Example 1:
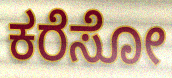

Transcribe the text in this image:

ಕರೆಸೋ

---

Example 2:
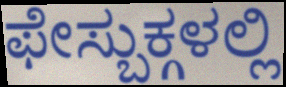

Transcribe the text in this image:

ಫೇಸ್ಬುಕ್ಗಳಲ್ಲಿ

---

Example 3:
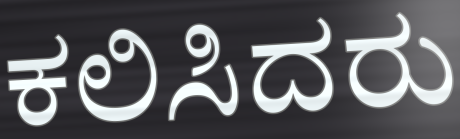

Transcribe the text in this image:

ಕಲಿಸಿದರು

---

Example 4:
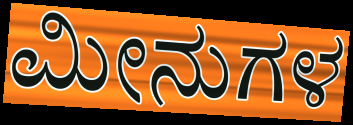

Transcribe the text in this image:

ಮೀನುಗಳ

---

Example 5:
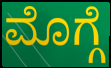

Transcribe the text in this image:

ಮೊಗ್ಗೆ